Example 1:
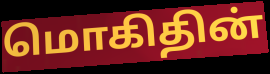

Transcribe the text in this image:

மொகிதின்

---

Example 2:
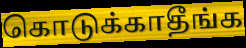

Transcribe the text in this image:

கொடுக்காதீங்க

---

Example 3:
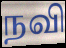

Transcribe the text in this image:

நவி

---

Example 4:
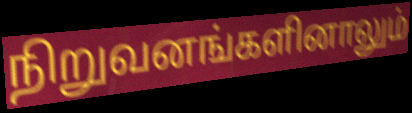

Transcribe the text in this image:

நிறுவனங்களினாலும்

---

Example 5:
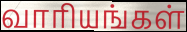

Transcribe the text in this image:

வாரியங்கள்